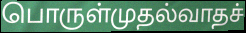
பொருள்முதல்வாதச்